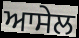
ਆਸੇਲ